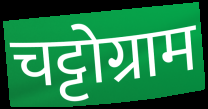
चट्टोग्राम